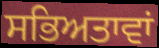
ਸਭਿਅਤਾਵਾਂ